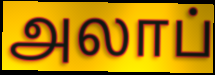
அலாப்